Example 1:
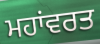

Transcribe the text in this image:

ਮਹਾਂਵਰਤ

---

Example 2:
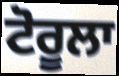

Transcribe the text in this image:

ਟੋਰੂਲਾ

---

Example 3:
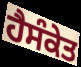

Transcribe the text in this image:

ਹੈਸੰਕੇਤ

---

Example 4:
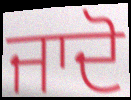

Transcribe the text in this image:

ਜਾਦੋ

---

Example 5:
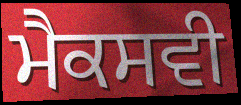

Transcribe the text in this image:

ਮੈਕਸਵੀ